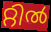
റ്റിൽ